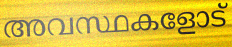
അവസ്ഥകളോട്